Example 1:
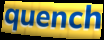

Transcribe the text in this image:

quench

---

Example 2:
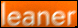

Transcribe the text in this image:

leaner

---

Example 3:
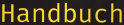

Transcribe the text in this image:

Handbuch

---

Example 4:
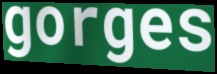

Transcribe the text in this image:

gorges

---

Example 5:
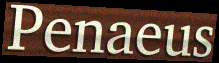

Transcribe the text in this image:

Penaeus